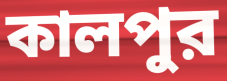
কালপুর